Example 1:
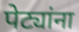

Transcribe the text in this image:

पेट्यांना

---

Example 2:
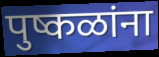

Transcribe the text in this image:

पुष्कळांना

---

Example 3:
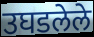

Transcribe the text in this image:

उघडलेले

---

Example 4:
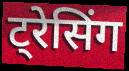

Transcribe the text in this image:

ट्रेसिंग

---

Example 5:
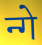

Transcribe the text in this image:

न्गे